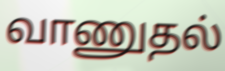
வாணுதல்